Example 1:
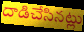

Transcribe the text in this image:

దాడిచేసినట్లు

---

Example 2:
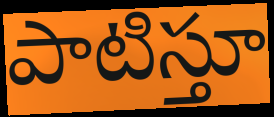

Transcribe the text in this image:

పాటిస్తూ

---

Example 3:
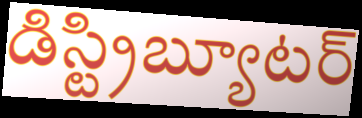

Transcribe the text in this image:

డిస్ట్రిబ్యూటర్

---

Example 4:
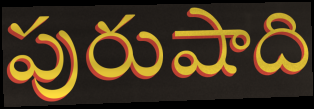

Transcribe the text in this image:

పురుషాది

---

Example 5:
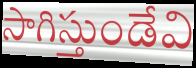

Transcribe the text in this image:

సాగిస్తుండేవి